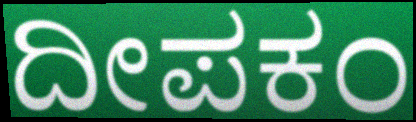
ದೀಪಕಂ